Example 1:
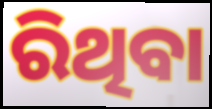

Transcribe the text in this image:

ରିଥିବା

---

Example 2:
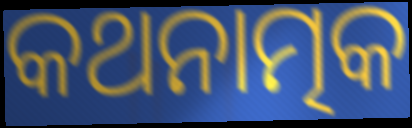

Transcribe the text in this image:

କଥନାତ୍ମକ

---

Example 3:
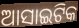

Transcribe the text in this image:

ଆସାଇଟିକ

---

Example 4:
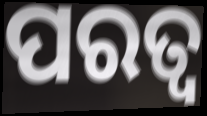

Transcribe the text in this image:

ପରତ୍ୱ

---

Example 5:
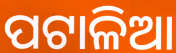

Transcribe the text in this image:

ପଟାଳିଆ